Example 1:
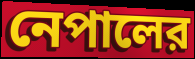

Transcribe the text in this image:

নেপালের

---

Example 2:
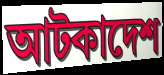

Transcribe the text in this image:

আটকাদেশ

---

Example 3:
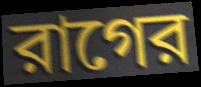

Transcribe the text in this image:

রাগের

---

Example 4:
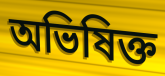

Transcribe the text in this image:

অভিষিক্ত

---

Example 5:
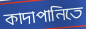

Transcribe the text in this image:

কাদাপানিতে